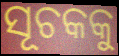
ସୂଚକକୁ